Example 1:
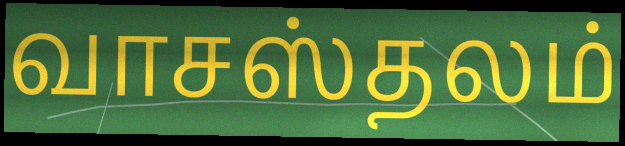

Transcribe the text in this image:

வாசஸ்தலம்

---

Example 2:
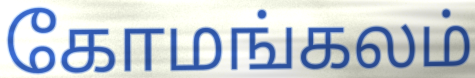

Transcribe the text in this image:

கோமங்கலம்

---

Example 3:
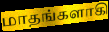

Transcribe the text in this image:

மாதங்களாகி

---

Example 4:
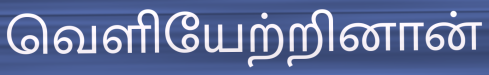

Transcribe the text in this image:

வெளியேற்றினான்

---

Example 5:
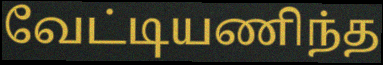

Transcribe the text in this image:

வேட்டியணிந்த